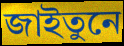
জাইতুনে